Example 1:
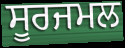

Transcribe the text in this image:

ਸੂਰਜਮਲ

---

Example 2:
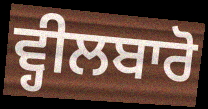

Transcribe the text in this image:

ਵ੍ਹੀਲਬਾਰੋ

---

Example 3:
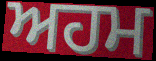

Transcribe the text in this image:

ਅਹਮ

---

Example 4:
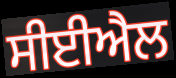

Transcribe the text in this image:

ਸੀਈਐਲ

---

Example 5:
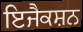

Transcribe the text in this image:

ਇਜੈਕਸ਼ਨ